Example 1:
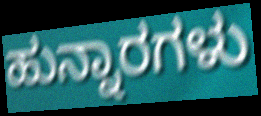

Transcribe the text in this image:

ಹುನ್ನಾರಗಳು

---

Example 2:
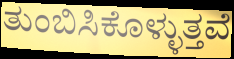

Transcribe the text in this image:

ತುಂಬಿಸಿಕೊಳ್ಳುತ್ತವೆ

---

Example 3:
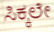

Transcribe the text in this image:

ಸಿಕ್ಕಲೇ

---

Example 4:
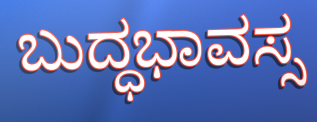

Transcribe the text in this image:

ಬುದ್ಧಭಾವಸ್ಸ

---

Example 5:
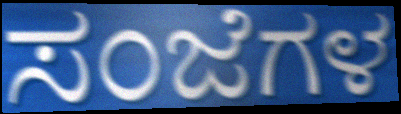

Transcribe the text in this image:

ಸಂಜೆಗಳ